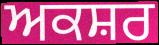
ਅਕਸ਼ਰ